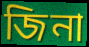
জিনা